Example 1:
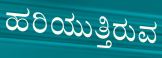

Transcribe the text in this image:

ಹರಿಯುತ್ತಿರುವ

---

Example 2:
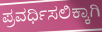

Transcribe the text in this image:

ಪ್ರವರ್ಧಿಸಲಿಕ್ಕಾಗಿ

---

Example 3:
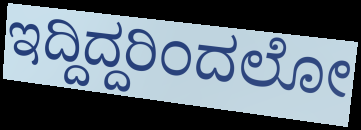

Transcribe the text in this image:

ಇದ್ದಿದ್ದರಿಂದಲೋ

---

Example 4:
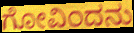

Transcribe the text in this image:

ಗೋವಿಂದನು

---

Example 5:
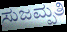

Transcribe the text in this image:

ಸುಜಮ್ಪತಿ